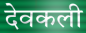
देवकली